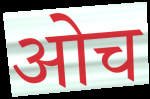
ओच